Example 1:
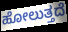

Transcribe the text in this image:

ಹೋಲುತ್ತದೆ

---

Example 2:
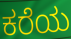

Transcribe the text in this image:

ಕರೆಯ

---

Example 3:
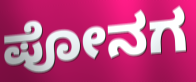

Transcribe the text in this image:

ಪೋನಗ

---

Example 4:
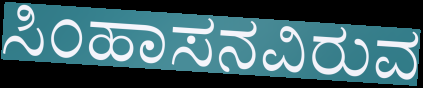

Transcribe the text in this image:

ಸಿಂಹಾಸನವಿರುವ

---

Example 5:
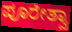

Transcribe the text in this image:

ಪೂರೇತ್ವಾ